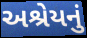
અશ્રેયનું